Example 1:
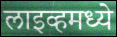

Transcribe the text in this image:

लाइव्हमध्ये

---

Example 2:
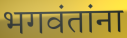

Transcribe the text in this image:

भगवंतांना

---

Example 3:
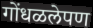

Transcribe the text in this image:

गोंधळलेपण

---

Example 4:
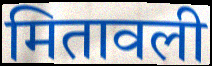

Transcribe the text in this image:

मितावली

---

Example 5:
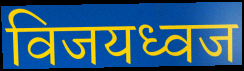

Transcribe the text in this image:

विजयध्वज